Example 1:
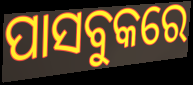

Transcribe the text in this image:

ପାସବୁକରେ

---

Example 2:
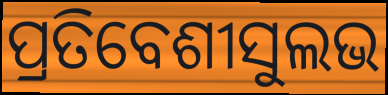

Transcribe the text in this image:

ପ୍ରତିବେଶୀସୁଲଭ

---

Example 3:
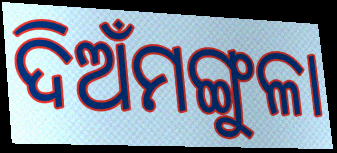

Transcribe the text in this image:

ଦିଅଁମଙ୍ଗୁଳା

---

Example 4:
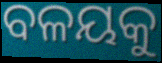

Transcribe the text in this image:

ବଳୟକୁ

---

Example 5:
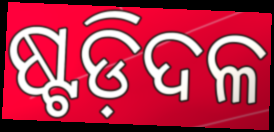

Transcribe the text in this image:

ଷ୍ଟଡ଼ିଦଳ